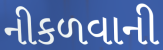
નીકળવાની